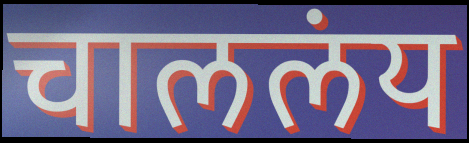
चाललंय